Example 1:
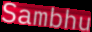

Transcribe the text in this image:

Sambhu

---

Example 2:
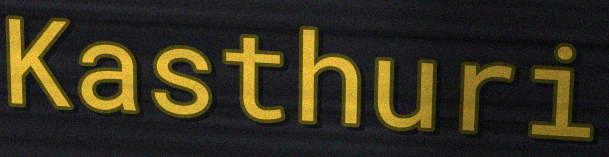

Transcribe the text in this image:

Kasthuri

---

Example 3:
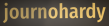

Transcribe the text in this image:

journohardy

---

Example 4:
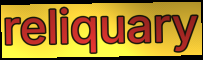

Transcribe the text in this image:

reliquary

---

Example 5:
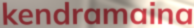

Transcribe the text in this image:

kendramaina